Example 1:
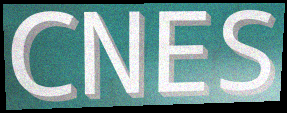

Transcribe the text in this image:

CNES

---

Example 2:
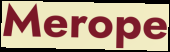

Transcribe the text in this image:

Merope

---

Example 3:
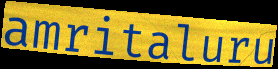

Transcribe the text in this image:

amritaluru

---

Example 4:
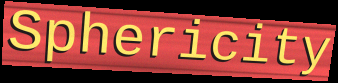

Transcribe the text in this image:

Sphericity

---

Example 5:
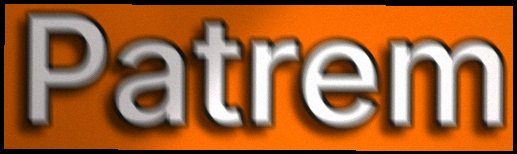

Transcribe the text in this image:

Patrem